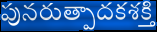
పునరుత్పాదకశక్తి